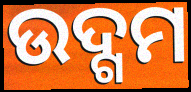
ଉଦ୍ଗମ